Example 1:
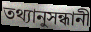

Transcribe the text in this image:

তথ্যানুসন্ধানী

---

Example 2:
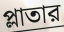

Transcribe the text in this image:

প্লাতার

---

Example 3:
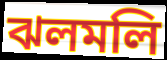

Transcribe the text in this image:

ঝলমলি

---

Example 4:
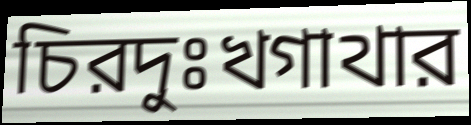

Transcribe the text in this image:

চিরদুঃখগাথার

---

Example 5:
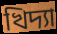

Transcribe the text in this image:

খিদ্যা